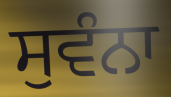
ਸੁਵੰਨਾ